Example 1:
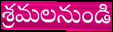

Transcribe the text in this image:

శ్రమలనుండి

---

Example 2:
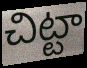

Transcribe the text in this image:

చిట్టా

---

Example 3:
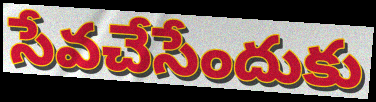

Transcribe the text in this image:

సేవచేసేందుకు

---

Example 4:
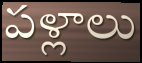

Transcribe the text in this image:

పళ్లాలు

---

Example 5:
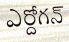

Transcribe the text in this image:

ఎర్దోగన్